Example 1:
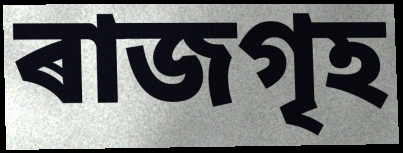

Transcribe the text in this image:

ৰাজগৃহ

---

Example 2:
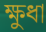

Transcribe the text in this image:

ক্ষুধা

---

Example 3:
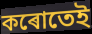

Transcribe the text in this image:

কৰোতেই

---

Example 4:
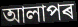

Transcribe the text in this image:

আলাপৰ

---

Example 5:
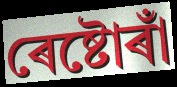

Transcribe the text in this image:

ৰেষ্টোৰাঁ